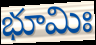
భూమిః